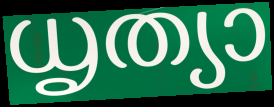
ധൃത്യാ